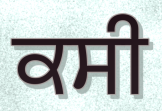
ਕਸੀ